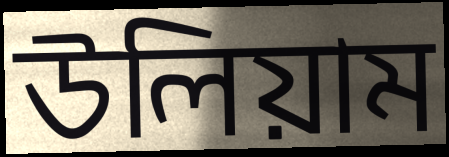
উলিয়াম